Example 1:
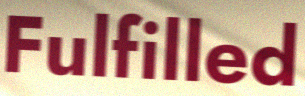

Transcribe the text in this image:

Fulfilled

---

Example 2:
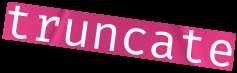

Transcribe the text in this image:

truncate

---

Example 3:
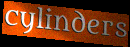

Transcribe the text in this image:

cylinders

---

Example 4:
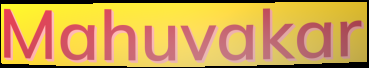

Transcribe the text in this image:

Mahuvakar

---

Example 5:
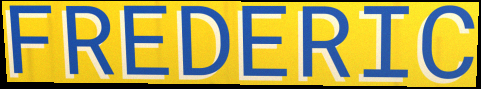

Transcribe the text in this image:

FREDERIC